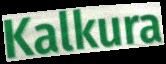
Kalkura